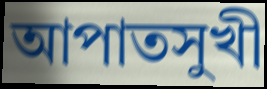
আপাতসুখী